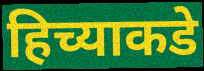
हिच्याकडे